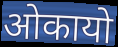
ओकायो